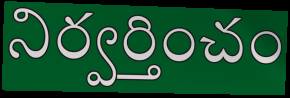
నిర్వర్తించం